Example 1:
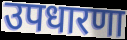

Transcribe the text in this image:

उपधारणा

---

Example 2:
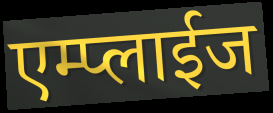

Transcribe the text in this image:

एम्प्लाईज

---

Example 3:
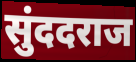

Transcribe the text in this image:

सुंददराज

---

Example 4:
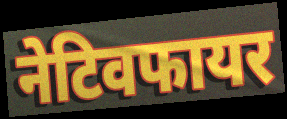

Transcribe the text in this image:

नेटिवफायर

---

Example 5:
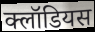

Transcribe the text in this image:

क्लॉडियस